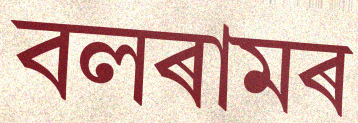
বলৰামৰ